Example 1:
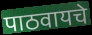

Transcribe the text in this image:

पाठवायचे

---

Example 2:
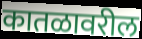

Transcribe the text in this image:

कातळावरील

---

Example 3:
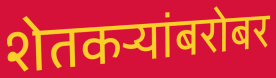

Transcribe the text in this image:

शेतकर्‍यांबरोबर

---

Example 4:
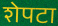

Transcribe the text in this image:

शेपटा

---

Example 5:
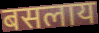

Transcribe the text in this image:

बसलाय